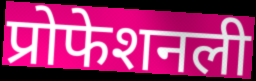
प्रोफेशनली